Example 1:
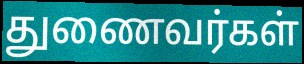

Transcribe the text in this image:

துணைவர்கள்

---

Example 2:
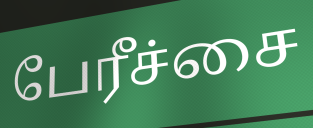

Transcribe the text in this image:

பேரீச்சை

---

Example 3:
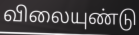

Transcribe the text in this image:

விலையுண்டு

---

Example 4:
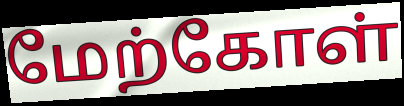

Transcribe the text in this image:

மேற்கோள்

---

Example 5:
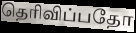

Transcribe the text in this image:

தெரிவிப்பதோ